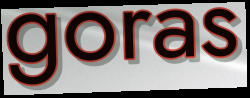
goras